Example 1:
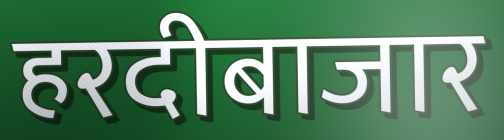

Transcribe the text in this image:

हरदीबाजार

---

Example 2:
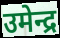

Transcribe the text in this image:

उमेन्द्र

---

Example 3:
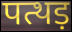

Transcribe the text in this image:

पत्थड़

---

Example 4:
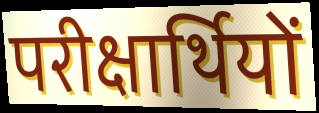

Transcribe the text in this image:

परीक्षार्थियों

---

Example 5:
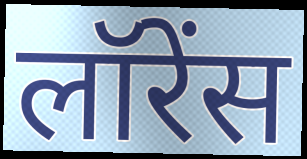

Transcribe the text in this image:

लॉरेंस